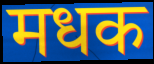
मधक